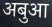
अबुआ